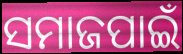
ସମାଜପାଇଁ